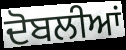
ਦੋਬਲੀਆਂ